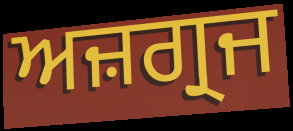
ਅਜ਼ਗ੍ਰਜ